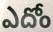
ఎదోం